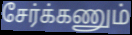
சேர்க்கணும்